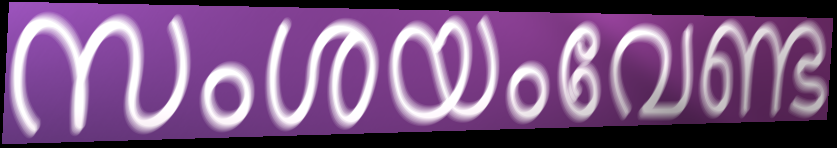
സംശയംവേണ്ട